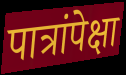
पात्रांपेक्षा